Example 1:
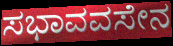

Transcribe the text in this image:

ಸಭಾವವಸೇನ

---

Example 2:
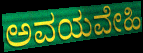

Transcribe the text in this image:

ಅವಯವೇಹಿ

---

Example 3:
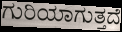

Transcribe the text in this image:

ಗುರಿಯಾಗುತ್ತದೆ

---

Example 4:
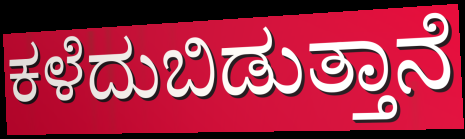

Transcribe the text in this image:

ಕಳೆದುಬಿಡುತ್ತಾನೆ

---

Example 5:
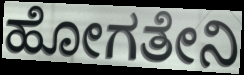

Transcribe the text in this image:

ಹೋಗತೇನಿ